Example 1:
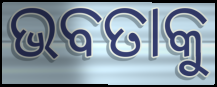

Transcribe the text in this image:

ଭବତାକୁ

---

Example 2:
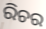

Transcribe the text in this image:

ରିଚର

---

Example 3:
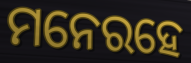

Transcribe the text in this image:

ମନେରହେ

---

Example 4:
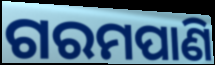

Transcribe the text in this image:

ଗରମପାଣି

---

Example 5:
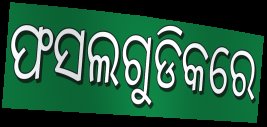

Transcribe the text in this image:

ଫସଲଗୁଡିକରେ